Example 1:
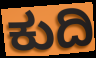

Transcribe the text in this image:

ಕುದಿ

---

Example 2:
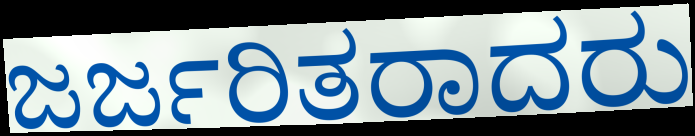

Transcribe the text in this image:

ಜರ್ಜರಿತರಾದರು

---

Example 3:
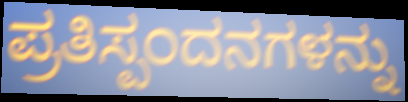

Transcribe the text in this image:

ಪ್ರತಿಸ್ಪಂದನಗಳನ್ನು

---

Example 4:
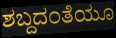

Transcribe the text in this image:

ಶಬ್ದದಂತೆಯೂ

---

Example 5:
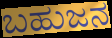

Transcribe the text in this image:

ಬಹುಜನ